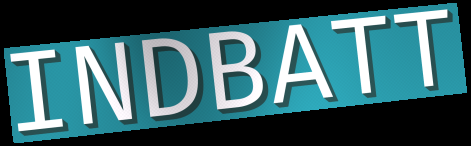
INDBATT